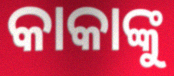
କାକାଙ୍କୁ